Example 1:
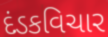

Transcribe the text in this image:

દંડકવિચાર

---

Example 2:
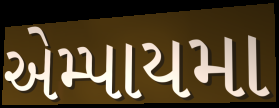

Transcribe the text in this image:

એમ્પાયમા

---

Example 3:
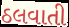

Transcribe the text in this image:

ઠલવાતી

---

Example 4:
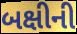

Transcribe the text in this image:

બક્ષીની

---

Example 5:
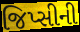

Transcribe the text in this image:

જિપ્સીની